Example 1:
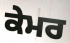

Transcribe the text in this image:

ਕੇਮਰ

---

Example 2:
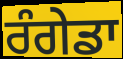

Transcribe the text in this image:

ਰੰਗੇਡਾ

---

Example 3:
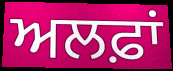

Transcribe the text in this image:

ਅਲਫ਼ਾਂ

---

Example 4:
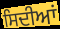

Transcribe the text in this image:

ਸਿਦੀਆਂ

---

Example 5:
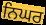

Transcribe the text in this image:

ਨਿਘਰ